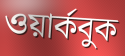
ওয়ার্কবুক